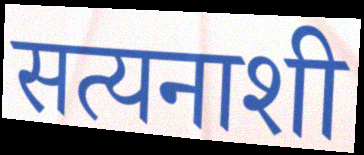
सत्यनाशी